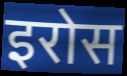
इरोस